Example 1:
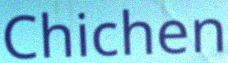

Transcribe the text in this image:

Chichen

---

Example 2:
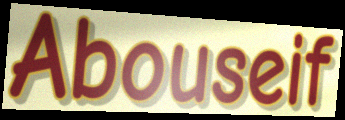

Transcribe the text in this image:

Abouseif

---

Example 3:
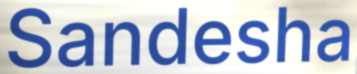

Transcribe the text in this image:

Sandesha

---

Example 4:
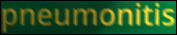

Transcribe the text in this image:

pneumonitis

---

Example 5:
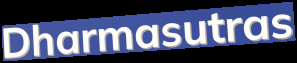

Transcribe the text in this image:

Dharmasutras